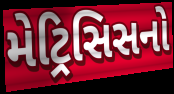
મેટ્રિસિસનો